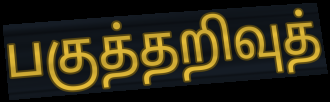
பகுத்தறிவுத்